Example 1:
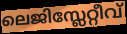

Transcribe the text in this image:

ലെജിസ്ലേറ്റീവ്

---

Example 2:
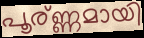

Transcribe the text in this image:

പൂര്ണ്ണമായി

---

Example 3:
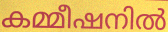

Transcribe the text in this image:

കമ്മീഷനിൽ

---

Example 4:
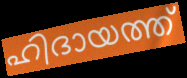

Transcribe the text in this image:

ഹിദായത്ത്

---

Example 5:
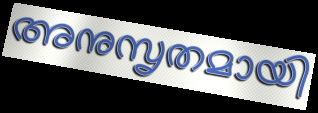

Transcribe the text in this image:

അനുസൃതമായി